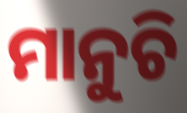
ମାନୁଚି